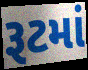
રૂટમાં